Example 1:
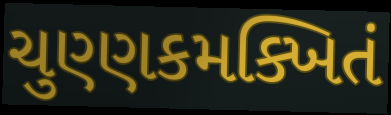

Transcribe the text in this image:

ચુણ્ણકમક્ખિતં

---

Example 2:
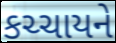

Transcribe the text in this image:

કચ્ચાયને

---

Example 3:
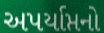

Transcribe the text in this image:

અપર્યાપ્તનો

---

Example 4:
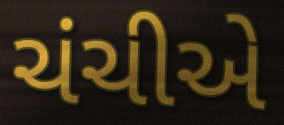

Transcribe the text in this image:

ચંચીએ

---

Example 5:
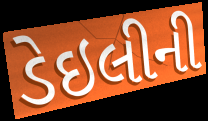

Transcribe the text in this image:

ડેઇલીની